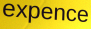
expence